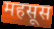
महसूस